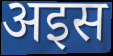
अइस